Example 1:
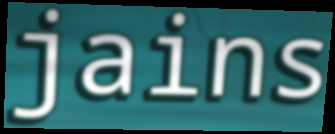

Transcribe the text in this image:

jains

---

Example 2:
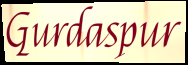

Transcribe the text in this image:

Gurdaspur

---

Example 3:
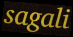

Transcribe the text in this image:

sagali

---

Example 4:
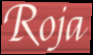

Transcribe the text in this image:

Roja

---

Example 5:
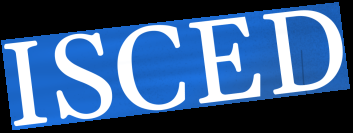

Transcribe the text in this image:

ISCED